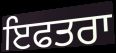
ਇਫਤਰਾ